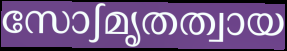
സോഽമൃതത്വായ